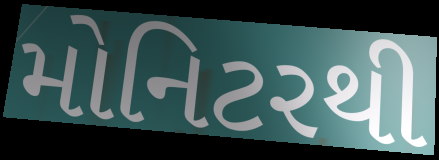
મોનિટરથી